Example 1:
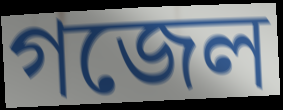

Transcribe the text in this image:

গজেল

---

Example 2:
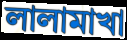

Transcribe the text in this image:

লালামাখা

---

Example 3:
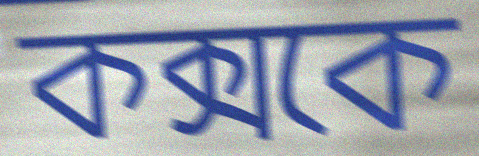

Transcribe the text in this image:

কক্সকে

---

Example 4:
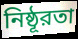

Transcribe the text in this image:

নিষ্ঠূরতা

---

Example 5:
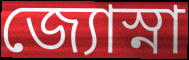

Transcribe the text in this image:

জ্যোস্না